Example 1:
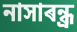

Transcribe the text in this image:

নাসাৰন্ধ্ৰ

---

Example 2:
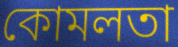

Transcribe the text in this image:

কোমলতা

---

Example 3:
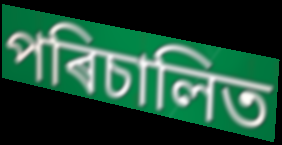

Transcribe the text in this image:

পৰিচালিত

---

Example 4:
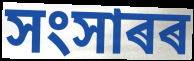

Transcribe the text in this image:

সংসাৰৰ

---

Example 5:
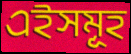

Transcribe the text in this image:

এইসমূহ